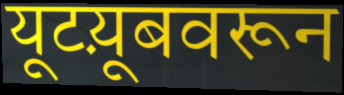
यूटय़ूबवरून